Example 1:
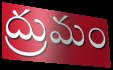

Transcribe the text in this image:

ద్రుమం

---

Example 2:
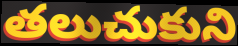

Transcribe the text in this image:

తలుచుకుని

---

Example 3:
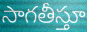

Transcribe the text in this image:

సాగతీస్తూ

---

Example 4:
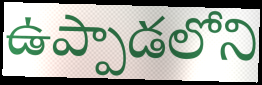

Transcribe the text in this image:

ఉప్పాడలోని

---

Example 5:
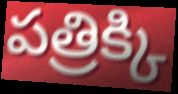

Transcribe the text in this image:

పత్రిక్కి